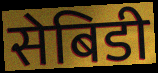
सेबिडी